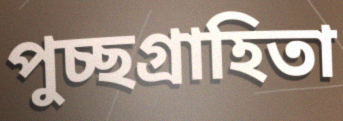
পুচ্ছগ্রাহিতা